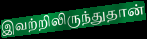
இவற்றிலிருந்துதான்